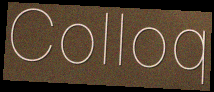
Colloq